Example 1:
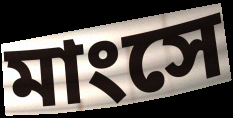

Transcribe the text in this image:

মাংসে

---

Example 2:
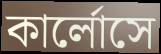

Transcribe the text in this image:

কার্লোসে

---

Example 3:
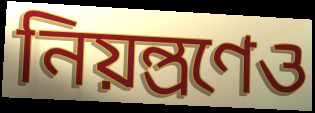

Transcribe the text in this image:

নিয়ন্ত্রণেও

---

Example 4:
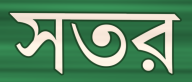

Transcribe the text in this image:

সতর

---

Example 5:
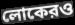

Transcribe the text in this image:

লোকেরও